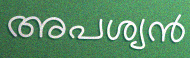
അപശ്യൻ